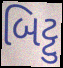
બિટ્ટુ